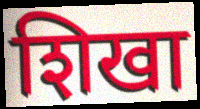
शिखा